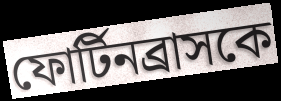
ফোর্টিনব্রাসকে